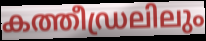
കത്തീഡ്രലിലും